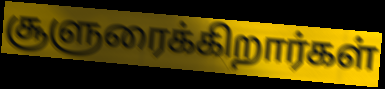
சூளுரைக்கிறார்கள்